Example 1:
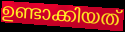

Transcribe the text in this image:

ഉണ്ടാക്കിയത്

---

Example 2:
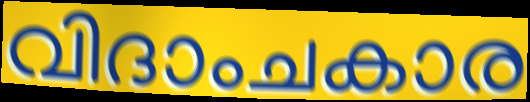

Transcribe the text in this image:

വിദാംചകാര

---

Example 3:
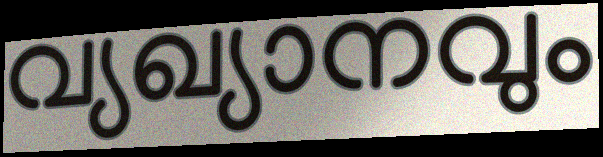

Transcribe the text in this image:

വ്യഖ്യാനവും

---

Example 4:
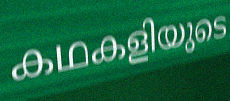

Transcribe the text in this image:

കഥകളിയുടെ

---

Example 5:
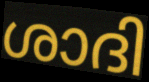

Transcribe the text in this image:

ശാദി